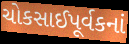
ચોકસાઈપૂર્વકનાં